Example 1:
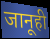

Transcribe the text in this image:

जानूही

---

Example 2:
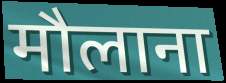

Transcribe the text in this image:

मौलाना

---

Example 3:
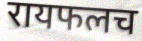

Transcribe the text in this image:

रायफलच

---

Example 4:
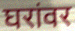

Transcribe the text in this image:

घरांवर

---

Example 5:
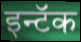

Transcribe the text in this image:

इन्टॅक